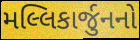
મલ્લિકાર્જુનનો